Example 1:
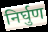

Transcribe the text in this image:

निर्घुण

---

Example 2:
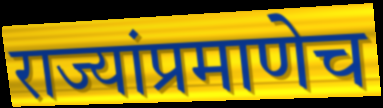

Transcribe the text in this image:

राज्यांप्रमाणेच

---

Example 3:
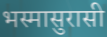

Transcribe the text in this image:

भस्मासुरासी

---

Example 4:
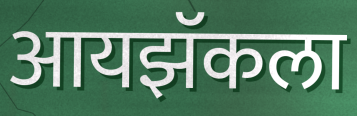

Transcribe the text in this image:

आयझॅकला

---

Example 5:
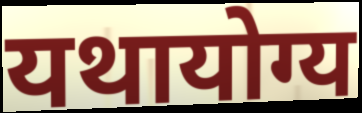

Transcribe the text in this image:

यथायोग्य